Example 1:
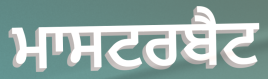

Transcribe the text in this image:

ਮਾਸਟਰਬੈਟ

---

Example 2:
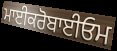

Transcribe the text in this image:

ਮਾਈਕਰੋਬਾਈਓਮ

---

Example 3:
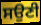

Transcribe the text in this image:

ਸਉਣੀ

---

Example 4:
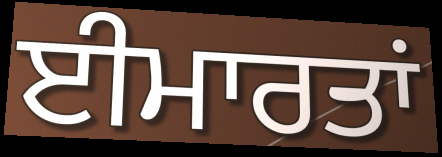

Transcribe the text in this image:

ਈਮਾਰਤਾਂ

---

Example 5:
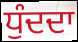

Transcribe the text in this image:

ਧੁੰਦਦਾ